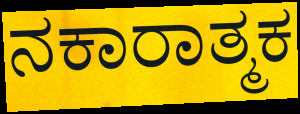
ನಕಾರಾತ್ಮಕ